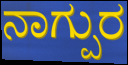
ನಾಗ್ಪುರ